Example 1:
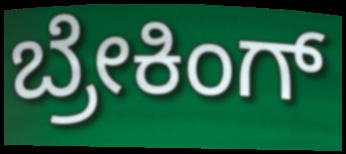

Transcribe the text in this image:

ಬ್ರೇಕಿಂಗ್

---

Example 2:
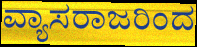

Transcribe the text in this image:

ವ್ಯಾಸರಾಜರಿಂದ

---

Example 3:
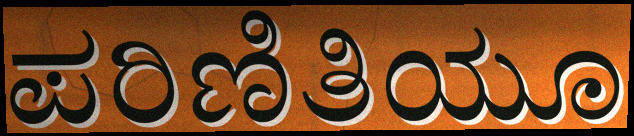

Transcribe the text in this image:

ಪರಿಣಿತಿಯೂ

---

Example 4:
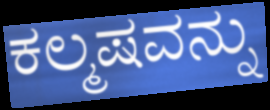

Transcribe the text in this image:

ಕಲ್ಮಷವನ್ನು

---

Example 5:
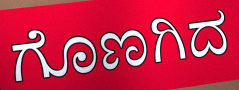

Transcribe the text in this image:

ಗೊಣಗಿದ